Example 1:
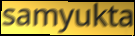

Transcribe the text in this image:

samyukta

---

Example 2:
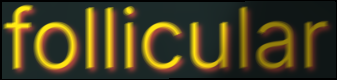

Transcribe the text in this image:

follicular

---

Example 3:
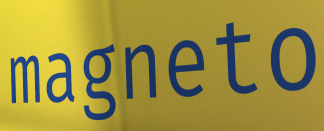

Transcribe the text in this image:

magneto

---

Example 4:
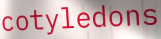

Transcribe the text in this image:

cotyledons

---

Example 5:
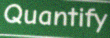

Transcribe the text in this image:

Quantify